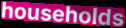
households